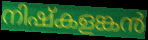
നിഷ്കളങ്കൻ